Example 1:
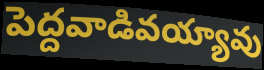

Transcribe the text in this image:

పెద్దవాడివయ్యావు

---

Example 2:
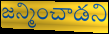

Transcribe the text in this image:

జన్మించాడని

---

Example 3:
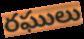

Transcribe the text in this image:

రఘులు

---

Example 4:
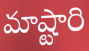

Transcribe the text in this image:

మాష్టారి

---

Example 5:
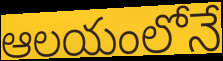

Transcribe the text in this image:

ఆలయంలోనే